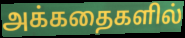
அக்கதைகளில்